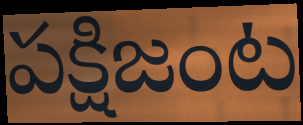
పక్షిజంట